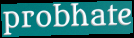
probhate